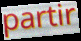
partir